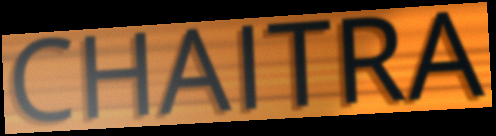
CHAITRA